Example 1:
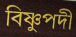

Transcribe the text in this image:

বিষ্ণুপদী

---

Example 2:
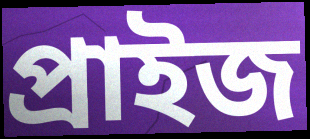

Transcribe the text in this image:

প্ৰাইজ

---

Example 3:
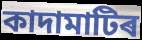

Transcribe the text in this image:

কাদামাটিৰ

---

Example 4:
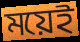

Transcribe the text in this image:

ময়েই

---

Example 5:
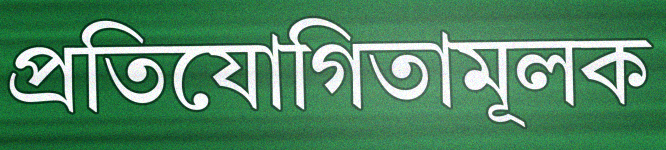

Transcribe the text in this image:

প্ৰতিযোগিতামূলক